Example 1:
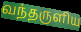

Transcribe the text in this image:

வந்தருளிய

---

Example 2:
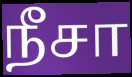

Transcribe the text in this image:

நீசா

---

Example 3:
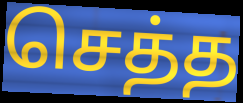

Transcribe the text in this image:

செத்த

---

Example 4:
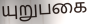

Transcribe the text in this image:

யுறுபகை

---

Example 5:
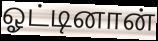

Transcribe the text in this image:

ஓட்டினான்